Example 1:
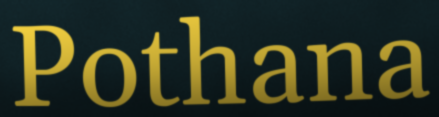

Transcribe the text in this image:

Pothana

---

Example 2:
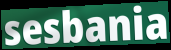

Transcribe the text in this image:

sesbania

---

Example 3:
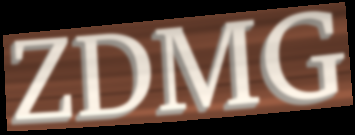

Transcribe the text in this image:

ZDMG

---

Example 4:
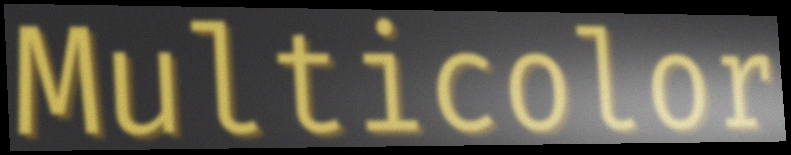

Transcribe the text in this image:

Multicolor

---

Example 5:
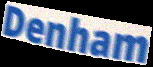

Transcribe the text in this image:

Denham